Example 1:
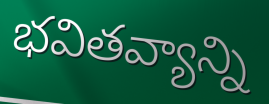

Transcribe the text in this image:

భవితవ్యాన్ని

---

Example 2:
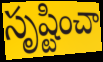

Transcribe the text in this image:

సృష్టించా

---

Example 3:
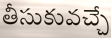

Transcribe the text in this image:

తీసుకువచ్చే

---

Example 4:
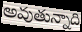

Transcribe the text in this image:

అవుతున్నాది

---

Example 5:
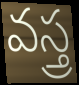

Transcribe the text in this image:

వస్త్ర